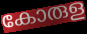
കോരുള